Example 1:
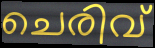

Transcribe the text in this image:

ചെരിവ്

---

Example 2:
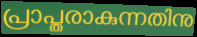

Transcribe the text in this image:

പ്രാപ്തരാകുന്നതിനു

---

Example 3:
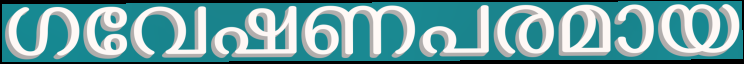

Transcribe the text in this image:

ഗവേഷണപരമായ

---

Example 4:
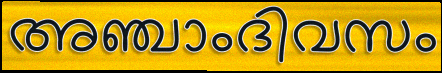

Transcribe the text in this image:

അഞ്ചാംദിവസം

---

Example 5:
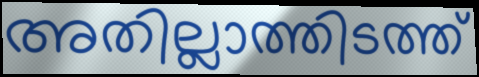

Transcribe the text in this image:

അതില്ലാത്തിടത്ത്